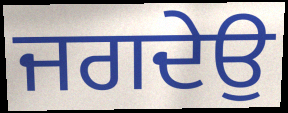
ਜਗਦੇਉ